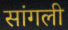
सांगली